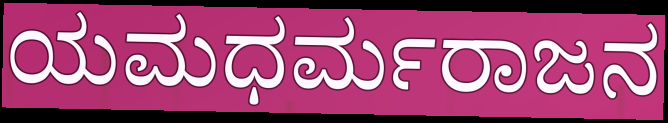
ಯಮಧರ್ಮರಾಜನ